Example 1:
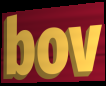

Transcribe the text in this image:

bov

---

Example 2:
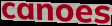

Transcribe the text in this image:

canoes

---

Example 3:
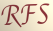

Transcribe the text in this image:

RFS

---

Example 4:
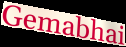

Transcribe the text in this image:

Gemabhai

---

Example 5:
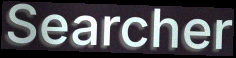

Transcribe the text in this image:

Searcher